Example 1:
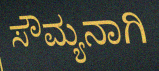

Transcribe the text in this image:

ಸೌಮ್ಯನಾಗಿ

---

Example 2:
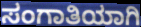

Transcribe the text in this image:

ಸಂಗಾತಿಯಾಗಿ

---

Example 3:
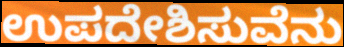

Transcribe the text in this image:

ಉಪದೇಶಿಸುವೆನು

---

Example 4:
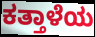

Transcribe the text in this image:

ಕತ್ತಾಳೆಯ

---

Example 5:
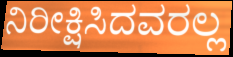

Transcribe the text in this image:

ನಿರೀಕ್ಷಿಸಿದವರಲ್ಲ